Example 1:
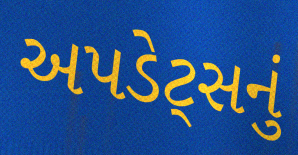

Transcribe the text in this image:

અપડેટ્સનું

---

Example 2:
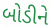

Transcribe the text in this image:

બોડીને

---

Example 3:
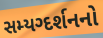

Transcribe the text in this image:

સમ્યગ્દર્શનનો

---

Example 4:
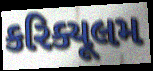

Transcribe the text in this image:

કરિક્યૂલમ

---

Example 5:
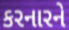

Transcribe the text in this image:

કરનારને